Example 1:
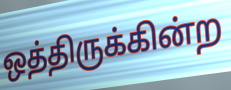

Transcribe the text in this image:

ஒத்திருக்கின்ற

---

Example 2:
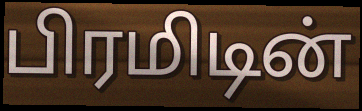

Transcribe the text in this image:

பிரமிடின்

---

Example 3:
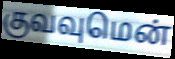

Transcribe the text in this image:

குவவுமென்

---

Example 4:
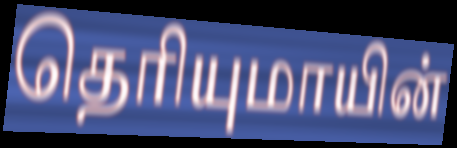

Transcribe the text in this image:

தெரியுமாயின்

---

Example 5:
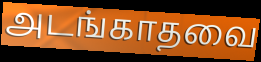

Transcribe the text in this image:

அடங்காதவை